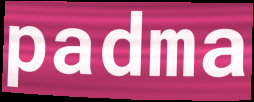
padma